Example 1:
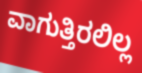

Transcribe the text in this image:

ವಾಗುತ್ತಿರಲಿಲ್ಲ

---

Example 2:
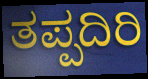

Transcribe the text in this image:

ತಪ್ಪದಿರಿ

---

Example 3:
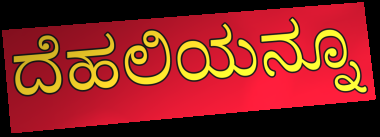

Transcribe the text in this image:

ದೆಹಲಿಯನ್ನೂ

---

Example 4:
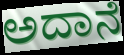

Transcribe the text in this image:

ಅದಾನೆ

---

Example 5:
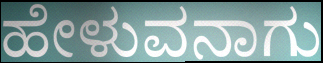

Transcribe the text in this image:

ಹೇಳುವನಾಗು